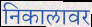
निकालावर